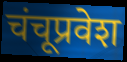
चंचूप्रवेश